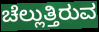
ಚೆಲ್ಲುತ್ತಿರುವ